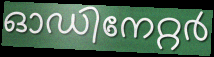
ഓഡിനേറ്റർ